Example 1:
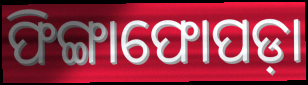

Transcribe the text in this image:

ଫିଙ୍ଗାଫୋପଡ଼ା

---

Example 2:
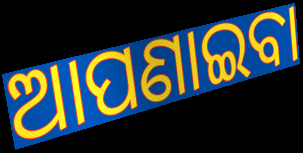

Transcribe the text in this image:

ଆପଣାଇବା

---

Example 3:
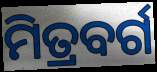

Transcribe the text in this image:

ମିତ୍ରବର୍ଗ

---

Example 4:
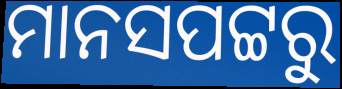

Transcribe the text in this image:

ମାନସପଟ୍ଟରୁ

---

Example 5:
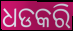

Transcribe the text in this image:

ଧଡକରି